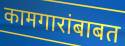
कामगारांबाबत